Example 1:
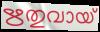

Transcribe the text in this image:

ഋതുവായ്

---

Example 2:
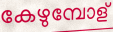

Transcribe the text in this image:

കേഴുമ്പോള്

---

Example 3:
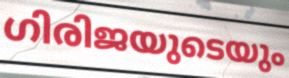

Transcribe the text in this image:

ഗിരിജയുടെയും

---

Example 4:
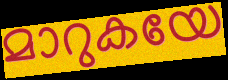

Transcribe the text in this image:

മാറുകയേ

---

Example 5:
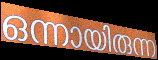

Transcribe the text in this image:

ഒന്നായിരുന്ന